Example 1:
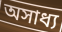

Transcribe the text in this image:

অসাধ্য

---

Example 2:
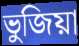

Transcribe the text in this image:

ভুজিয়া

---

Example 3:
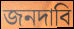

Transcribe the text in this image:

জনদাবি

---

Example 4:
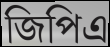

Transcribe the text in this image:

জিপিএ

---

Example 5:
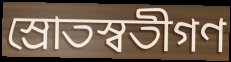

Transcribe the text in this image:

স্রোতস্বতীগণ